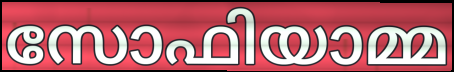
സോഫിയാമ്മ